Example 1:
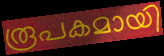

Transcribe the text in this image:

രൂപകമായി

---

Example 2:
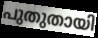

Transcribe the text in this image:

പുതുതായി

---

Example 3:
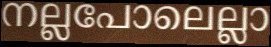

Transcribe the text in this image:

നല്ലപോലെല്ലാ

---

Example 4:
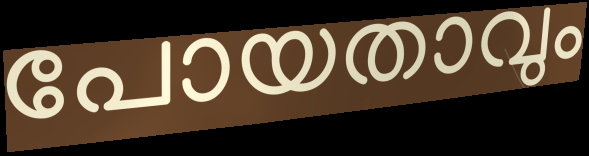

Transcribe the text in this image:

പോയതാവും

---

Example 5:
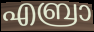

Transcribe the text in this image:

എബ്രാ